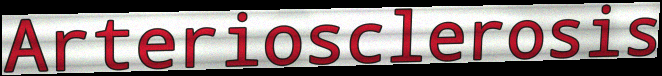
Arteriosclerosis